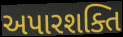
અપારશક્તિ